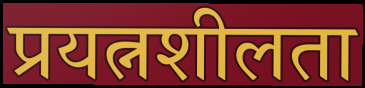
प्रयत्नशीलता